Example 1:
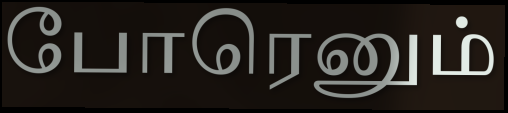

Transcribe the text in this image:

போரெனும்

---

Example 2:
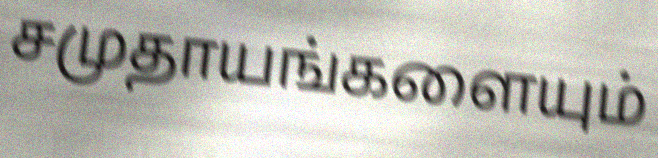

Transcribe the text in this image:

சமுதாயங்களையும்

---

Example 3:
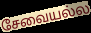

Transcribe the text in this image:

சேவையல்ல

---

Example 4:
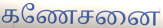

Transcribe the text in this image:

கணேசனை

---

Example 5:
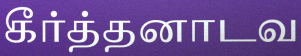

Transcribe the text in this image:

கீர்த்தனாடவ